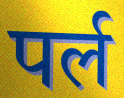
पर्ल